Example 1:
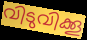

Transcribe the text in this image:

വിടുവിക്കൂ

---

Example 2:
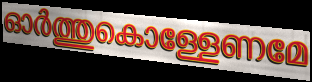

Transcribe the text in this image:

ഓർത്തുകൊള്ളേണമേ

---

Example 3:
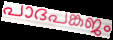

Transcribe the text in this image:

പാദപങ്കജം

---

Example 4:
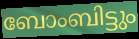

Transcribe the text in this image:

ബോംബിട്ടും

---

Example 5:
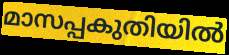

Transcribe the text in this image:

മാസപ്പകുതിയിൽ